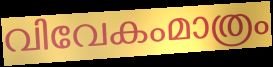
വിവേകംമാത്രം